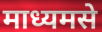
माध्यमसे